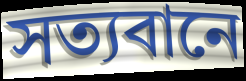
সত্যবানে